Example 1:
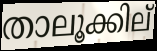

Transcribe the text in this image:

താലൂക്കില്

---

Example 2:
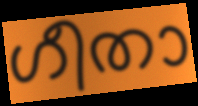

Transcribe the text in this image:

ഗീതാ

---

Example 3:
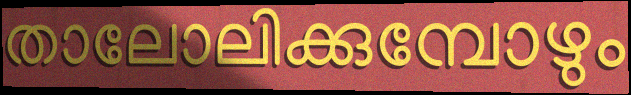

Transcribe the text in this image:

താലോലിക്കുമ്പോഴും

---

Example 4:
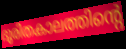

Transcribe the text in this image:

ദുരിതകാലത്തിന്റെ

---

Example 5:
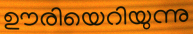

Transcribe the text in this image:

ഊരിയെറിയുന്നു